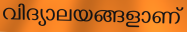
വിദ്യാലയങ്ങളാണ്